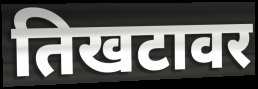
तिखटावर